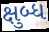
ક્ષુબ્ધ